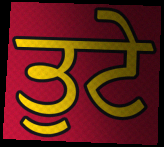
ਤੁਟੇ